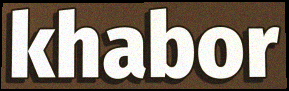
khabor